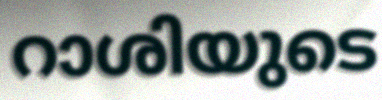
റാശിയുടെ